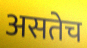
असतेच